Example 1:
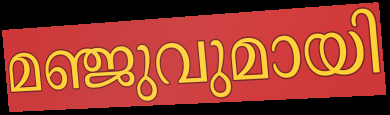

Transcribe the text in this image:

മഞ്ജുവുമായി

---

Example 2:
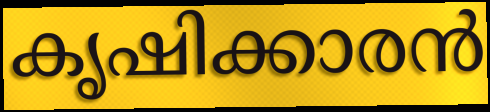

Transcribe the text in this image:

കൃഷിക്കാരൻ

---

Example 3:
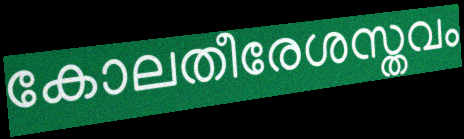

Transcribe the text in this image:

കോലതീരേശസ്തവം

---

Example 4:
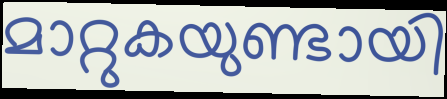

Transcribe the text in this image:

മാറ്റുകയുണ്ടായി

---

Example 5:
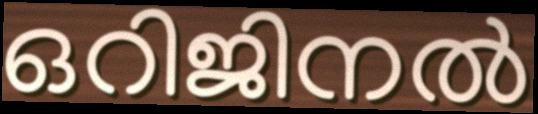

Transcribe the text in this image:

ഒറിജിനൽ